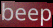
beep